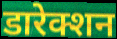
डारेक्शन